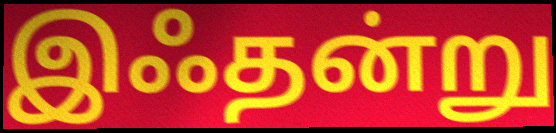
இஃதன்று